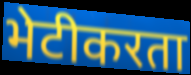
भेटीकरता